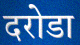
दरोडा